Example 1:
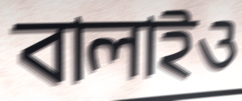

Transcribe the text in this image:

বালাইও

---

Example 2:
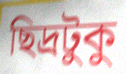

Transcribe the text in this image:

ছিদ্রটুকু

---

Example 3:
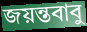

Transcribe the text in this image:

জয়ন্তবাবু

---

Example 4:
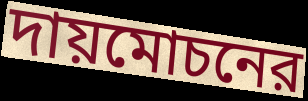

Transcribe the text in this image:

দায়মোচনের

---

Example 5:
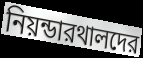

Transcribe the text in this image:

নিয়ন্ডারথালদের